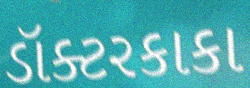
ડૉક્ટરકાકા